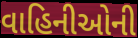
વાહિનીઓની